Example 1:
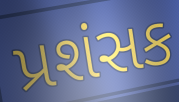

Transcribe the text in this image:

પ્રશંસક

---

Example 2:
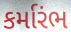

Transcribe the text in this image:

કર્મારંભ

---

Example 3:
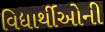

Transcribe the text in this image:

વિદ્યાર્થીઓની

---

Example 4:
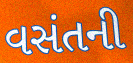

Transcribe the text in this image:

વસંતની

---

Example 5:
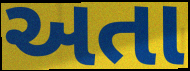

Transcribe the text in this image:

અતા